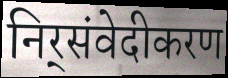
निर्संवेदीकरण